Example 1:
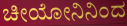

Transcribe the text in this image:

ಚೀಯೋನಿನಿಂದ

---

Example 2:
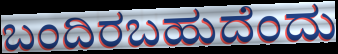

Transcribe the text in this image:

ಬಂದಿರಬಹುದೆಂದು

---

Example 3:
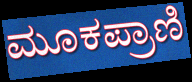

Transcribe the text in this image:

ಮೂಕಪ್ರಾಣಿ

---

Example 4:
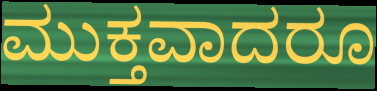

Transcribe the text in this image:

ಮುಕ್ತವಾದರೂ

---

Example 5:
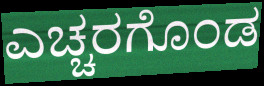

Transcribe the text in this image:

ಎಚ್ಚರಗೊಂಡ